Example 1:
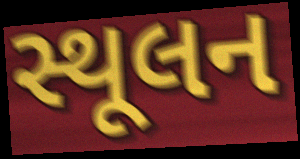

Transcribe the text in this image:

સ્થૂલન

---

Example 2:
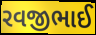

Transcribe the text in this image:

રવજીભાઈ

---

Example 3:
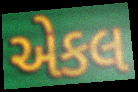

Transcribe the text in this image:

એકલ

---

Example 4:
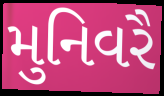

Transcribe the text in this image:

મુનિવરૈ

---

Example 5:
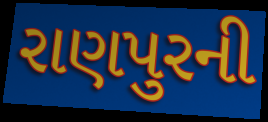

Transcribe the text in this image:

રાણપુરની